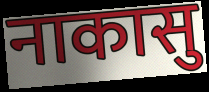
नाकासु